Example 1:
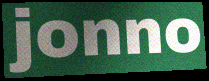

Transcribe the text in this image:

jonno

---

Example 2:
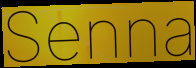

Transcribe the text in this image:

Senna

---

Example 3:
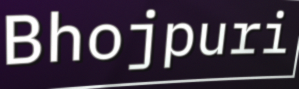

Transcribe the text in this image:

Bhojpuri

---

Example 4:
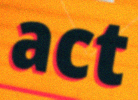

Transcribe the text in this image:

act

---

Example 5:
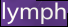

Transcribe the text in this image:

lymph